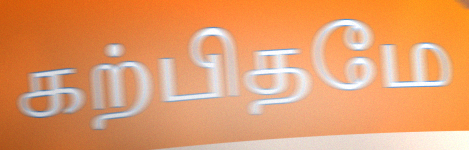
கற்பிதமே